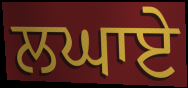
ਲਘਾਏ